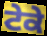
ਟੇਕੇ